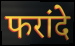
फरांदे